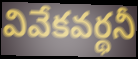
వివేకవర్థనీ